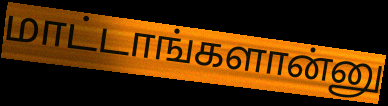
மாட்டாங்களான்னு